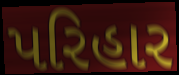
પરિહાર